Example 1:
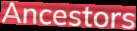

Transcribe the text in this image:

Ancestors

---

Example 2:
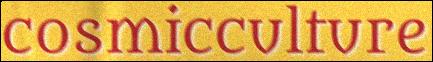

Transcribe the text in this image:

cosmicculture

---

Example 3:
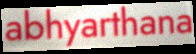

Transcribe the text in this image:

abhyarthana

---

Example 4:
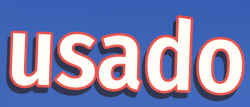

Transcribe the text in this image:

usado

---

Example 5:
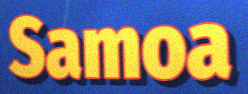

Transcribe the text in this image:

Samoa